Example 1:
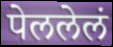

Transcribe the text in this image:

पेललेलं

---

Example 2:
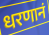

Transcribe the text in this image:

धरणानं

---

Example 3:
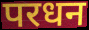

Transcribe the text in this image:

परधन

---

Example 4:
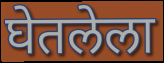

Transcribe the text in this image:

घेतलेला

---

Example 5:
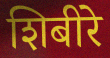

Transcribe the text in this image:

शिबीरे